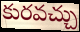
కురవచ్చు